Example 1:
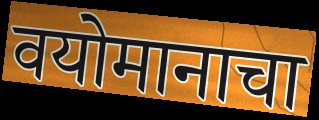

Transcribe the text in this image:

वयोमानाचा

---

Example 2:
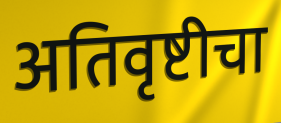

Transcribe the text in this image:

अतिवृष्टीचा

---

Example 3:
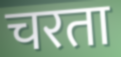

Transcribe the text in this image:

चरता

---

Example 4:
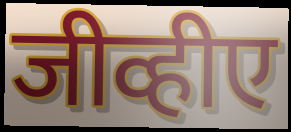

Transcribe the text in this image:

जीव्हीए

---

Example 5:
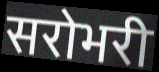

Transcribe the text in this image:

सरोभरी